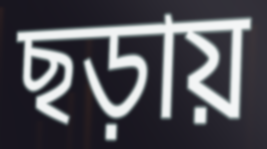
ছড়ায়